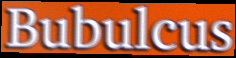
Bubulcus